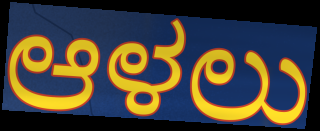
ಆಳಲು